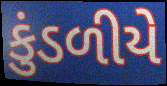
કુંડળીયે